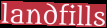
landfills